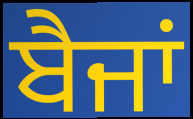
ਬੈਜਾਂ